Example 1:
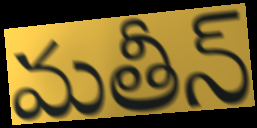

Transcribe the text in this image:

మతీన్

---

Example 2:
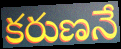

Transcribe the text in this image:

కరుణనే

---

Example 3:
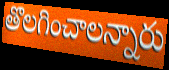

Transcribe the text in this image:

తొలగించాలన్నారు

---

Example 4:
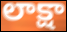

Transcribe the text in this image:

లాక్షా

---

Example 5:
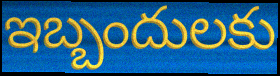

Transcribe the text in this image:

ఇబ్బందులకు